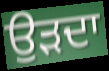
ਉੜਦਾ